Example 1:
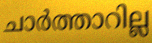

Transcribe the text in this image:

ചാർത്താറില്ല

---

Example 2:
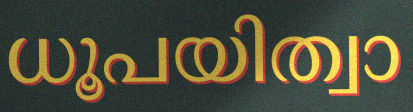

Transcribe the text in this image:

ധൂപയിത്വാ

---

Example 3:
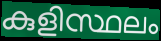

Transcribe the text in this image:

കുളിസ്ഥലം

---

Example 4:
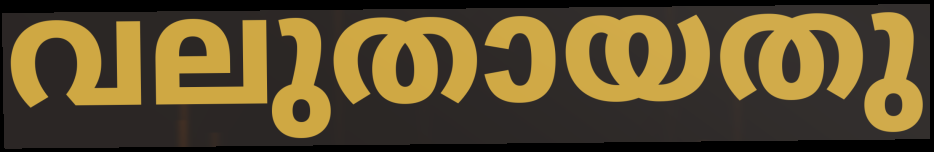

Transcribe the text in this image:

വലുതായതു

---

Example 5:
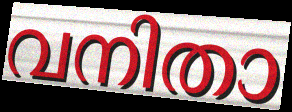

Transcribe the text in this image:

വനിതാ